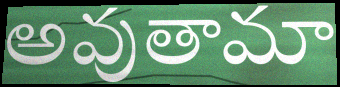
అవుతామా